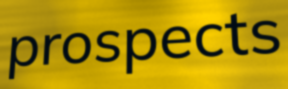
prospects